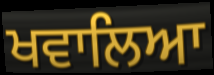
ਖਵਾਲਿਆ